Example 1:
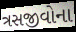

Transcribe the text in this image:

ત્રસજીવોના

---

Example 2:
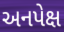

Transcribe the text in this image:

અનપેક્ષ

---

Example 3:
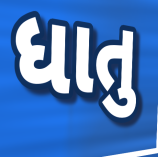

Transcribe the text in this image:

ધાતુ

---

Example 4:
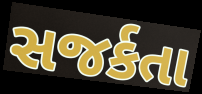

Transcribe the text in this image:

સજર્કતા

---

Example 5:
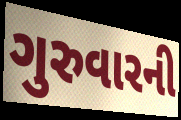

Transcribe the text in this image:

ગુરુવારની